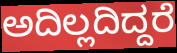
ಅದಿಲ್ಲದಿದ್ದರೆ